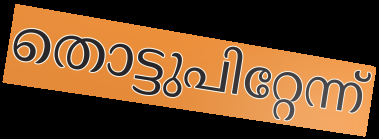
തൊട്ടുപിറ്റേന്ന്